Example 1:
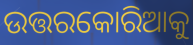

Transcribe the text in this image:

ଉତ୍ତରକୋରିଆକୁ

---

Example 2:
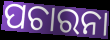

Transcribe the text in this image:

ପଚାରନା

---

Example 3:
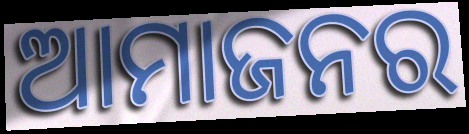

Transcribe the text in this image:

ଆମାଜନର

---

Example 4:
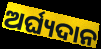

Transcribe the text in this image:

ଅର୍ଘ୍ୟଦାନ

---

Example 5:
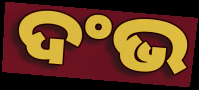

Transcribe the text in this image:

ଦଂଭ